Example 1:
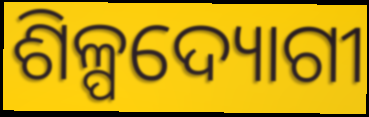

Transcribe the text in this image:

ଶିଳ୍ପଦ୍ୟୋଗୀ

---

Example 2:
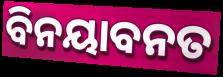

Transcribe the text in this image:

ବିନୟାବନତ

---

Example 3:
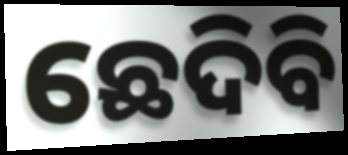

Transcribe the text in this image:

ଛେଦିବି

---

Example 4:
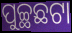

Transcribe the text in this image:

ପୁଚ୍ଛଛଟା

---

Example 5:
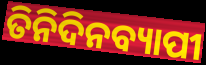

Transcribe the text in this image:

ତିନିଦିନବ୍ୟାପୀ